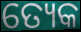
ତ୍ଯେକ